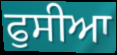
ਫੁਸੀਆ